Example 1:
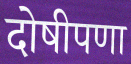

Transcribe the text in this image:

दोषीपणा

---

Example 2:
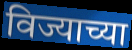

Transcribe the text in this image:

विज्याच्या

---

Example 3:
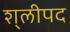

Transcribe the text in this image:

श्लीपद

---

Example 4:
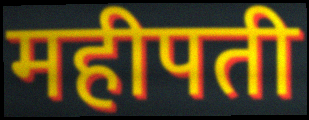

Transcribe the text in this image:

महीपती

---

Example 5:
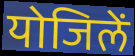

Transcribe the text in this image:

योजिलें